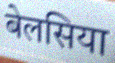
बेलसिया